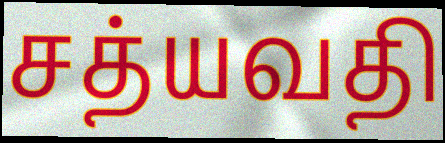
சத்யவதி